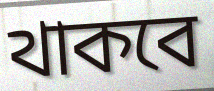
থাকবে